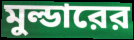
মুল্ডারের